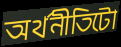
অৰ্থনীতিটো